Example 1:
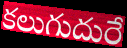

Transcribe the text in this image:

కలుగుదురే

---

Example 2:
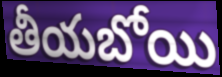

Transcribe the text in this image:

తీయబోయి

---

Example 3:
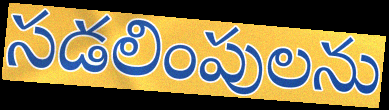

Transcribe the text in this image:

సడలింపులను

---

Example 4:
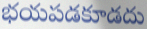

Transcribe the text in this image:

భయపడకూడదు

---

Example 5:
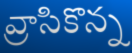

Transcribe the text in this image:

వ్రాసికొన్న